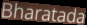
Bharatada